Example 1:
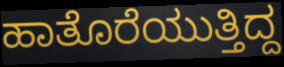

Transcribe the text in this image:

ಹಾತೊರೆಯುತ್ತಿದ್ದ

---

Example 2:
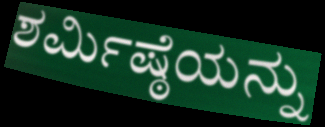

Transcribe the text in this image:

ಶರ್ಮಿಷ್ಠೆಯನ್ನು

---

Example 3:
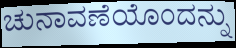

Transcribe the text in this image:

ಚುನಾವಣೆಯೊಂದನ್ನು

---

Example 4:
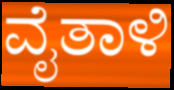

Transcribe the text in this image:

ವೈತಾಳಿ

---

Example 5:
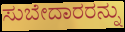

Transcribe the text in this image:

ಸುಬೇದಾರರನ್ನು